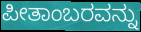
ಪೀತಾಂಬರವನ್ನು